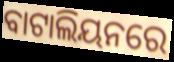
ବାଟାଲିୟନରେ